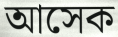
আসেক